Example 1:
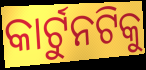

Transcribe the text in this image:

କାର୍ଟୁନଟିକୁ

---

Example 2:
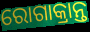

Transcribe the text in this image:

ରୋଗାକ୍ରାନ୍ତ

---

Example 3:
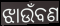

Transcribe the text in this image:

ଝାଉଁବଣ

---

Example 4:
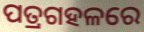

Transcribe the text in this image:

ପତ୍ରଗହଳରେ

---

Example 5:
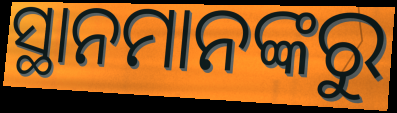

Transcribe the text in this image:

ସ୍ଥାନମାନଙ୍କରୁ